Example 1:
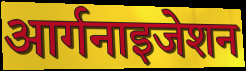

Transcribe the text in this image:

आर्गनाइजेशन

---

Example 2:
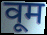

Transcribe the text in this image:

वूम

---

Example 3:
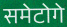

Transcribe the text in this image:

समेटोगे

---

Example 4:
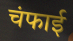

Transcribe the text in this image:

चंफाई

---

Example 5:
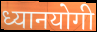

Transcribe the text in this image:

ध्यानयोगी